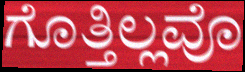
ಗೊತ್ತಿಲ್ಲವೊ